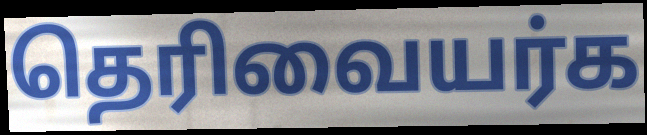
தெரிவையர்க